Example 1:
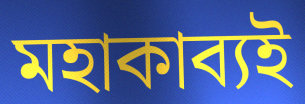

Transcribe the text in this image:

মহাকাব্যই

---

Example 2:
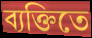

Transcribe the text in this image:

ব্যক্তিতে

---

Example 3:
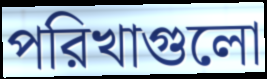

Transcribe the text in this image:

পরিখাগুলো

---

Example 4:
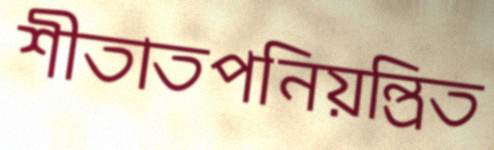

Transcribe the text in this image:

শীতাতপনিয়ন্ত্রিত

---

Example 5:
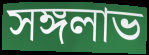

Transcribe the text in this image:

সঙ্গলাভ